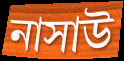
নাসাউ